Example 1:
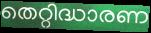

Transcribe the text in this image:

തെറ്റിദ്ധാരണ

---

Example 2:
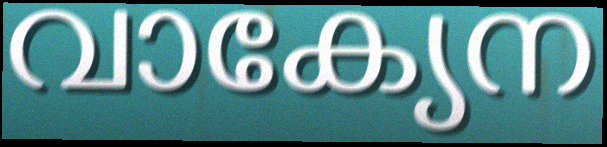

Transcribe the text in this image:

വാക്യേന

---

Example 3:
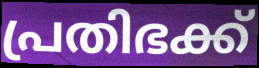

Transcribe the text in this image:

പ്രതിഭക്ക്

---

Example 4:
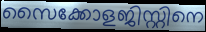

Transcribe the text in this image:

സൈക്കോളജിസ്റ്റിനെ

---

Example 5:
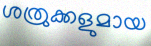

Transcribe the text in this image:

ശത്രുക്കളുമായ